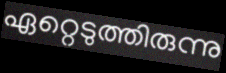
ഏറ്റെടുത്തിരുന്നു